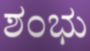
ಶಂಭು